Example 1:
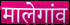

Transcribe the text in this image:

मालेगांव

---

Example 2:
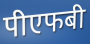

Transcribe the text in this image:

पीएफबी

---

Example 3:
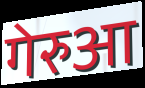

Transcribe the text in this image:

गेरुआ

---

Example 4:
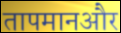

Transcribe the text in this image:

तापमानऔर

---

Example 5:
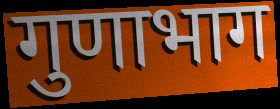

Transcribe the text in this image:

गुणाभाग